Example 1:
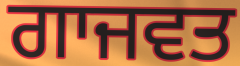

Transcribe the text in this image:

ਗਾਜਵਤ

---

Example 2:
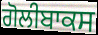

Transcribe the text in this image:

ਗੋਲੀਬਾਕਸ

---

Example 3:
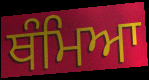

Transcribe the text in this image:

ਥੰਮਿਆ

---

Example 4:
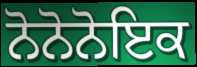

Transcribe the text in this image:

ਨੋਨੋਨੋਇਕ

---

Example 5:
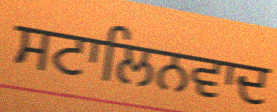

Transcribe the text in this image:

ਸਟਾਲਿਨਵਾਦ